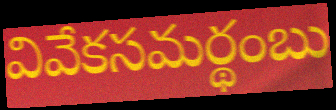
వివేకసమర్థంబు